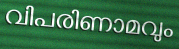
വിപരിണാമവും